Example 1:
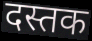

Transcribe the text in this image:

दस्तक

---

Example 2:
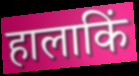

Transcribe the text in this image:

हालाकिं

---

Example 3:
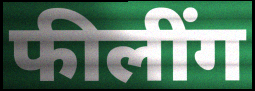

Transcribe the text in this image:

फीलींग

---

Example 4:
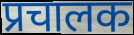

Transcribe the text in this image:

प्रचालक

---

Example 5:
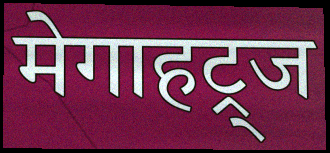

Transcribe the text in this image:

मेगाहट्र्ज